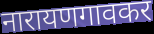
नारायणगावकर